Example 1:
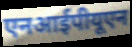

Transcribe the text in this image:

एनआईपीयूएन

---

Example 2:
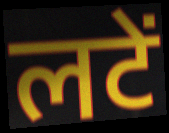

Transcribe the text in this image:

लटें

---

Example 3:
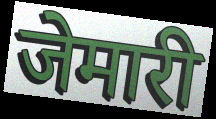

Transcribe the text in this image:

जेमारी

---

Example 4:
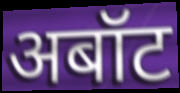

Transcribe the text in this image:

अबॉट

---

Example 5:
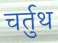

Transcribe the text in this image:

चर्तुथ